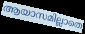
ആയാസമില്ലാതെ